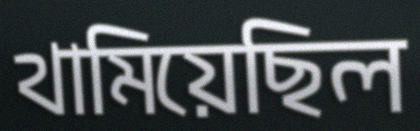
থামিয়েছিল